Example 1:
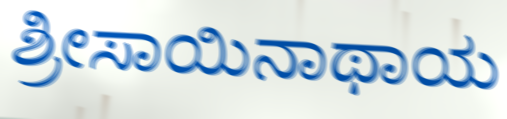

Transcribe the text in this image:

ಶ್ರೀಸಾಯಿನಾಥಾಯ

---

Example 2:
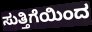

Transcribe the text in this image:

ಸುತ್ತಿಗೆಯಿಂದ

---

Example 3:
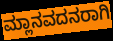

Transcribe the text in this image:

ಮ್ಲಾನವದನರಾಗಿ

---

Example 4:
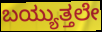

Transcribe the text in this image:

ಬಯ್ಯುತ್ತಲೇ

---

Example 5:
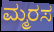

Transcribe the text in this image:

ಮ್ಮರಸ